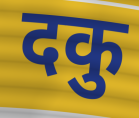
दकु